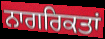
ਨਾਗਰਿਕਤਾਂ